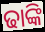
ଢାଙ୍କି